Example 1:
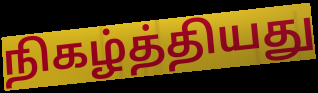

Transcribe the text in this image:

நிகழ்த்தியது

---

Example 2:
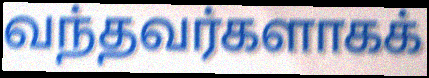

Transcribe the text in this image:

வந்தவர்களாகக்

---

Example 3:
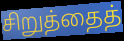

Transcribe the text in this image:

சிறுத்தைத்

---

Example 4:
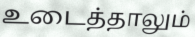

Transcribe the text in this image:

உடைத்தாலும்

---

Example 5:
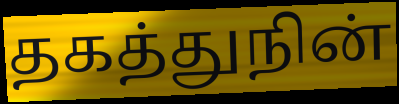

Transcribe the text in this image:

தகத்துநின்